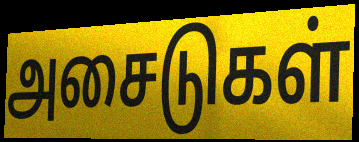
அசைடுகள்